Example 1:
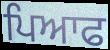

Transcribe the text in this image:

ਪਿਆਫ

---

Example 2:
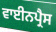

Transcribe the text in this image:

ਵਾਈਨਪ੍ਰੈਸ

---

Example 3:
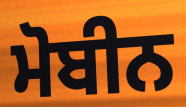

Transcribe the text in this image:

ਮੋਬੀਨ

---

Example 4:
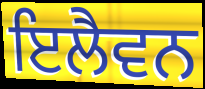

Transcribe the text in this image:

ਇਲੈਵਨ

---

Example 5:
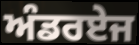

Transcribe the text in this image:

ਅੰਡਰਏਜ